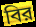
বির